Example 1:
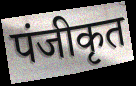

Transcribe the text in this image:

पंजीकृत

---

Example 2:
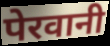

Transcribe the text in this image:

पेरवानी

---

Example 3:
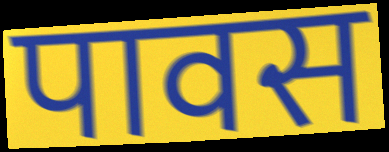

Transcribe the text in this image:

पावस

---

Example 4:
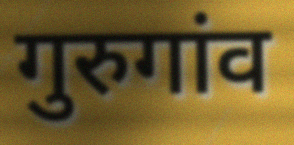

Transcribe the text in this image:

गुरुगांव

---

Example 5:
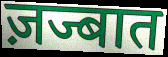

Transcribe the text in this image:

ज़ज्बात